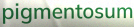
pigmentosum